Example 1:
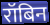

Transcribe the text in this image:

रॉबिन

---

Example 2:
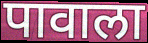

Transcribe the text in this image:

पावाला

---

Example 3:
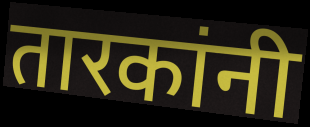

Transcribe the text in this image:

तारकांनी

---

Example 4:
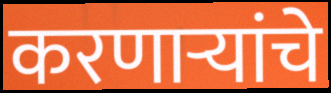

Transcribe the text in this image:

करणाऱ्यांचे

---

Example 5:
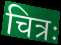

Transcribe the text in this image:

चित्रः